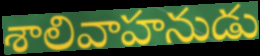
శాలివాహనుడు